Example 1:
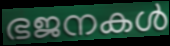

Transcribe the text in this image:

ഭജനകൾ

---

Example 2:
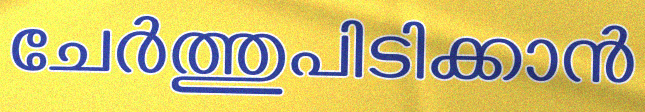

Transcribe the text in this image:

ചേർത്തുപിടിക്കാൻ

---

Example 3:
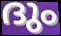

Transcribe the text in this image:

ദും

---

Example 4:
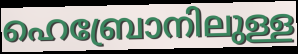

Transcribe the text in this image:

ഹെബ്രോനിലുള്ള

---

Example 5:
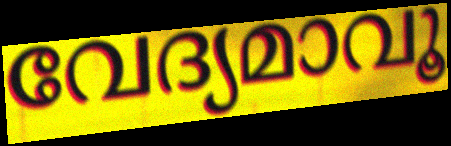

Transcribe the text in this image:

വേദ്യമാവൂ